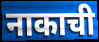
नाकाची